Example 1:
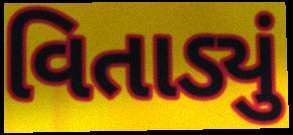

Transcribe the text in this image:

વિતાડ્યું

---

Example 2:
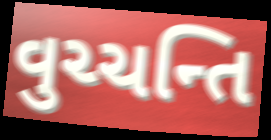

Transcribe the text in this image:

વુચ્ચન્તિ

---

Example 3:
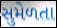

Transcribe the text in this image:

સુમેળતા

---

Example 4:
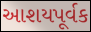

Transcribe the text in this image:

આશયપૂર્વક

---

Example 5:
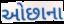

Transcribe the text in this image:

ઓછાના